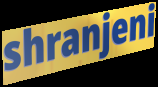
shranjeni